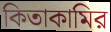
কিতাকামির